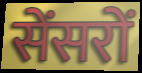
सेंसरों